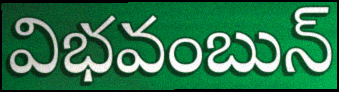
విభవంబున్